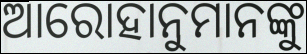
ଆରୋହାନୁମାନଙ୍କୁ